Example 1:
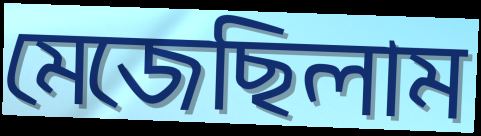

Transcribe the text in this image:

মেজেছিলাম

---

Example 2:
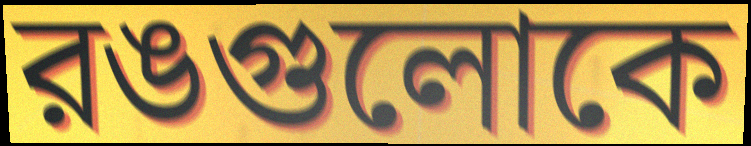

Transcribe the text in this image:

রঙগুলোকে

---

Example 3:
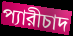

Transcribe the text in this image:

প্যারীচাদ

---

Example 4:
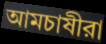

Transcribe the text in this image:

আমচাষীরা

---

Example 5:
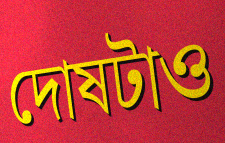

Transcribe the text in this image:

দোষটাও